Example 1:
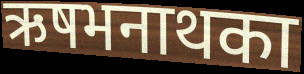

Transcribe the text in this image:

ऋषभनाथका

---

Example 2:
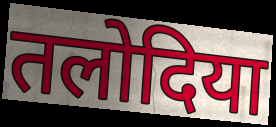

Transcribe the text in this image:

तलोदिया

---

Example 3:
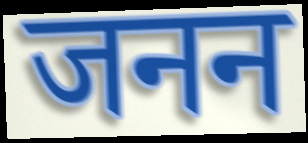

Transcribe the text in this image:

जनन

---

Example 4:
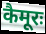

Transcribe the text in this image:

कैमूरः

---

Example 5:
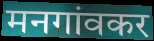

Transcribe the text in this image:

मनगांवकर